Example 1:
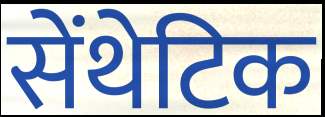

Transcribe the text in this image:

सेंथेटिक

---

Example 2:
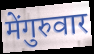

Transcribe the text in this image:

मेंगुरुवार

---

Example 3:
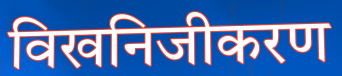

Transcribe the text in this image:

विखनिजीकरण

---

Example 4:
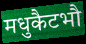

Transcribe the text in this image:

मधुकैटभौ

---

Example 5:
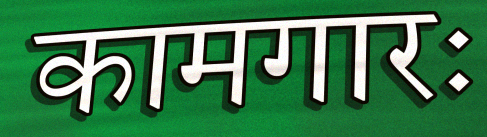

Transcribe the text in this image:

कामगारः